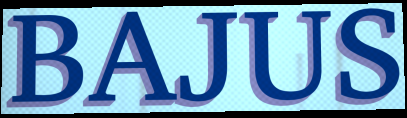
BAJUS